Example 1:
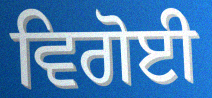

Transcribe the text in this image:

ਵਿਗੋਈ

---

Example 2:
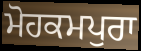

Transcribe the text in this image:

ਮੋਹਕਮਪੁਰਾ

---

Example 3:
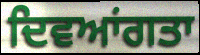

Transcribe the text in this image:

ਦਿਵਆਂਗਤਾ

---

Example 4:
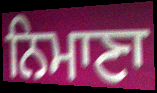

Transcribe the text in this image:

ਨਿਮਾਣਾ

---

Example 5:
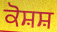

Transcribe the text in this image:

ਕੋਸ਼ਸ਼